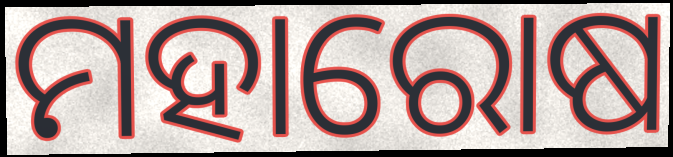
ମହାରୋଷ